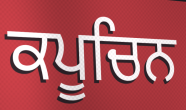
ਕਪੂਚਿਨ